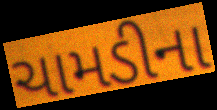
ચામડીના